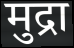
मुद्रा